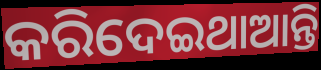
କରିଦେଇଥାଆନ୍ତି